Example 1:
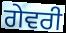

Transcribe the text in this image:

ਗੇਵਰੀ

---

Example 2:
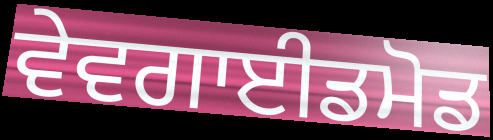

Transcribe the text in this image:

ਵੇਵਗਾਈਡਮੋਡ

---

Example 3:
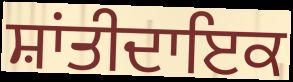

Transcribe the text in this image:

ਸ਼ਾਂਤੀਦਾਇਕ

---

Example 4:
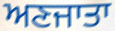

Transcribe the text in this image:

ਅਣਜਾਤਾ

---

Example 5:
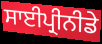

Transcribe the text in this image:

ਸਾਈਪ੍ਰੀਨੀਡੇ